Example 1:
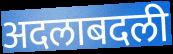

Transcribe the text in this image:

अदलाबदली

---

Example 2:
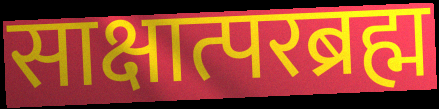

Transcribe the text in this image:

साक्षात्परब्रह्म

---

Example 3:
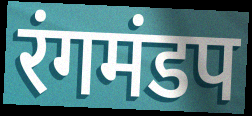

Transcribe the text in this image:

रंगमंडप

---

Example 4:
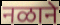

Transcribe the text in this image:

नळाने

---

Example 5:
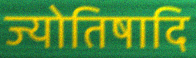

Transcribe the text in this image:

ज्योतिषादि